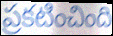
ప్రకటించింది